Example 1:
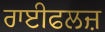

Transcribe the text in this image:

ਰਾਈਫਲਜ਼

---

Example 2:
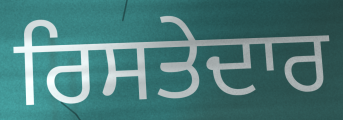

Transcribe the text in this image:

ਰਿਸਤੇਦਾਰ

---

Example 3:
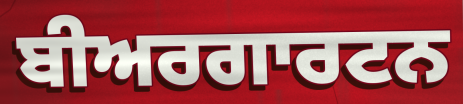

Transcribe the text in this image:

ਬੀਅਰਗਾਰਟਨ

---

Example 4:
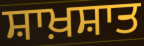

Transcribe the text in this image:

ਸ਼ਾਖ਼ਸ਼ਾਤ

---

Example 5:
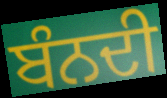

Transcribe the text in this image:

ਬੰਨਦੀ